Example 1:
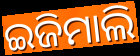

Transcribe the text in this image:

ଇଜିମାଲି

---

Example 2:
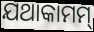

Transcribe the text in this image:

ଯଥାକାମମ୍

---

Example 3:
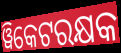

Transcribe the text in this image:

ୱିକେଟରକ୍ଷକ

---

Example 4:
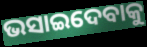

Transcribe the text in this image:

ଭସାଇଦେବାକୁ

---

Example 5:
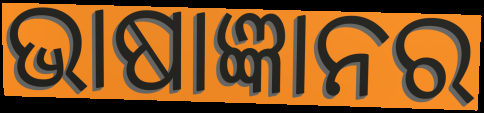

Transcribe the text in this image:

ଭାଷାଜ୍ଞାନର